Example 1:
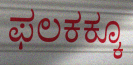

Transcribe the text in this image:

ಫಲಕಕ್ಕೂ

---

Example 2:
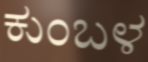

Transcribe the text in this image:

ಕುಂಬಳ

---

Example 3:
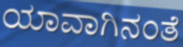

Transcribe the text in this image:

ಯಾವಾಗಿನಂತೆ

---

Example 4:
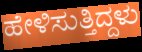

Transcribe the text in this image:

ಹೇಳಿಸುತ್ತಿದ್ದಳು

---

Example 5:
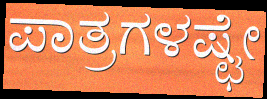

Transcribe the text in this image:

ಪಾತ್ರಗಳಷ್ಟೇ